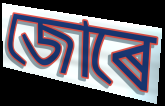
জোৰে